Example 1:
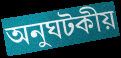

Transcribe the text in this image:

অনুঘটকীয়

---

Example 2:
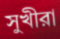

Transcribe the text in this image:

সুখীরা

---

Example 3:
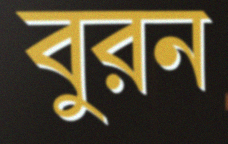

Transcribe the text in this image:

বুরন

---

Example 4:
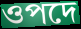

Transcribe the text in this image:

ওপদে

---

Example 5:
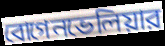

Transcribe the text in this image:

বোগেনভেলিয়ার